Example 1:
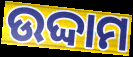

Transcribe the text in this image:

ଉଦ୍ଦାମ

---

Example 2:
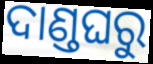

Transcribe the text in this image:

ଦାଣ୍ଡଘରୁ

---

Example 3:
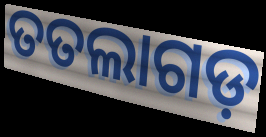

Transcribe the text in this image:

ତତଲାଗଡ଼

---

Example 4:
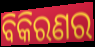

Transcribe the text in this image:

ବିକିରଣର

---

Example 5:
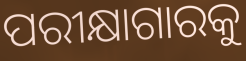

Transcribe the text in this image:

ପରୀକ୍ଷାଗାରକୁ